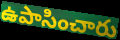
ఉపాసించారు